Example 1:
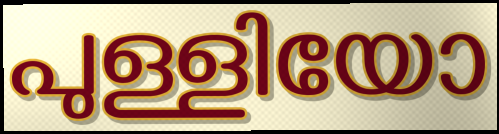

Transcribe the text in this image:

പുള്ളിയോ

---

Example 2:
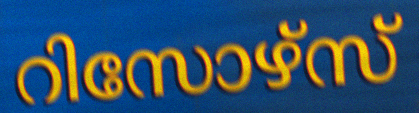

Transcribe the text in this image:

റിസോഴ്സ്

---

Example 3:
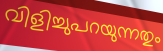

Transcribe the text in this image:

വിളിച്ചുപറയുന്നതും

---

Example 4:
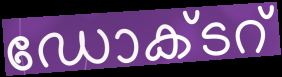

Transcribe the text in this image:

ഡോക്ടറ്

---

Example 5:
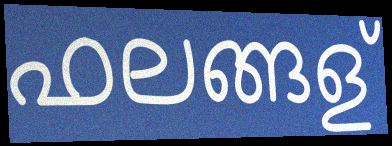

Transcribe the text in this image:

ഫലങ്ങള്